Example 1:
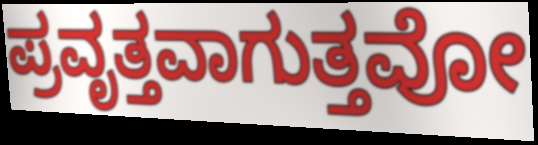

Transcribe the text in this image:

ಪ್ರವೃತ್ತವಾಗುತ್ತವೋ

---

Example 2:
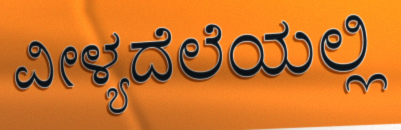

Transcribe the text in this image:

ವೀಳ್ಯದೆಲೆಯಲ್ಲಿ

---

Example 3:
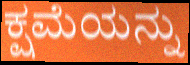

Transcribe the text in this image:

ಕ್ಷಮೆಯನ್ನು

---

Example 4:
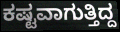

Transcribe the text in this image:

ಕಷ್ಟವಾಗುತ್ತಿದ್ದ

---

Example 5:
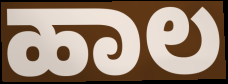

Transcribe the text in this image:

ಹಾಲ